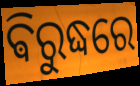
ଵିରୁଦ୍ଧରେ